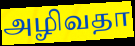
அழிவதா